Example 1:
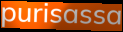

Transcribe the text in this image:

purisassa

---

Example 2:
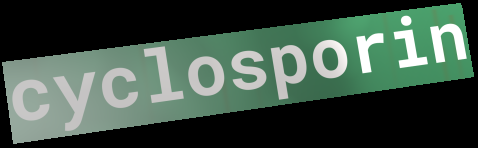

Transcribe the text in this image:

cyclosporin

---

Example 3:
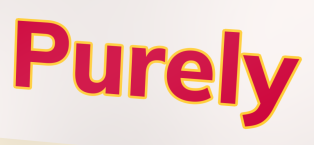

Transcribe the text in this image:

Purely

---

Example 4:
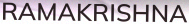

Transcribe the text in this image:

RAMAKRISHNA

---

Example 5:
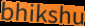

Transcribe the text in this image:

bhikshu